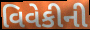
વિવેકીની